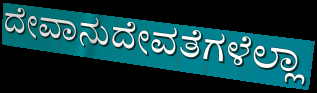
ದೇವಾನುದೇವತೆಗಳೆಲ್ಲಾ